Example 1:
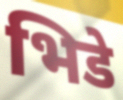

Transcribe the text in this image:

भिडे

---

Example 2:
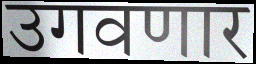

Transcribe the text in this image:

उगवणार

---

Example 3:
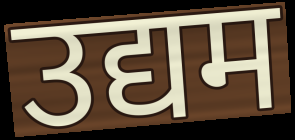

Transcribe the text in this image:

उद्यम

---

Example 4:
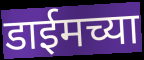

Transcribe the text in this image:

डाईमच्या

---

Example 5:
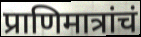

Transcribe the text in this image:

प्राणिमात्रांचं